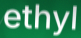
ethyl